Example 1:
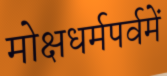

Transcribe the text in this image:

मोक्षधर्मपर्वमें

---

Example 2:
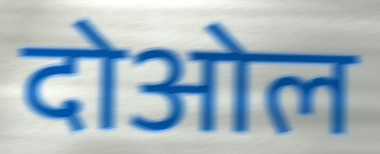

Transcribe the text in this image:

दोओल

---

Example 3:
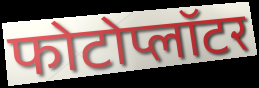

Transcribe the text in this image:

फोटोप्लॉटर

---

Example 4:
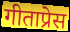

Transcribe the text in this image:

गीताप्रेस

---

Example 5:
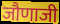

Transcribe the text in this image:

जौणाजी